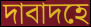
দাবাদহে